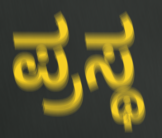
ಪ್ರಸ್ಥ